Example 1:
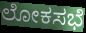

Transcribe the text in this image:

ಲೋಕಸಭೆ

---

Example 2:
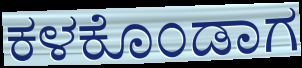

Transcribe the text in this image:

ಕಳಕೊಂಡಾಗ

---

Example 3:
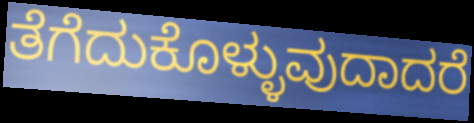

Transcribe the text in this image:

ತೆಗೆದುಕೊಳ್ಳುವುದಾದರೆ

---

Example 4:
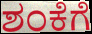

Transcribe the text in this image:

ಶಂಕೆಗೆ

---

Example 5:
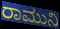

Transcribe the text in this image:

ರಾಮುನಿ